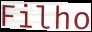
Filho